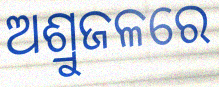
ଅଶ୍ରୁଜଳରେ